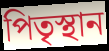
পিতৃস্থান